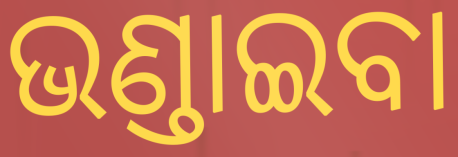
ଭଣ୍ଡାଇବା